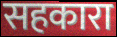
सहकारा